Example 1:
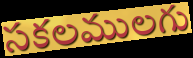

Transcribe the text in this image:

సకలములగు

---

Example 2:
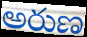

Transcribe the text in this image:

అరుణ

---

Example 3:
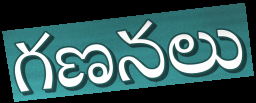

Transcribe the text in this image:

గణనలు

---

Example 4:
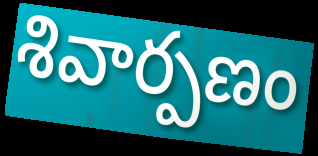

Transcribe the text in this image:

శివార్పణం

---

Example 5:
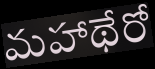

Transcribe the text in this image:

మహాథేరో